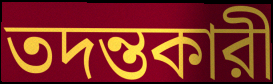
তদন্তকারী